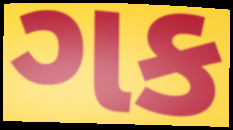
ગક